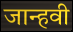
जान्‍हवी